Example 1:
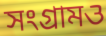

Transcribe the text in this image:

সংগ্রামও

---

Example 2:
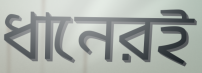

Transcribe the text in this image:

ধানেরই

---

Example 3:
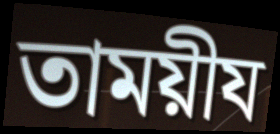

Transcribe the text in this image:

তাময়ীয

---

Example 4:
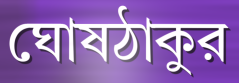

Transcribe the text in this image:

ঘোষঠাকুর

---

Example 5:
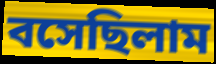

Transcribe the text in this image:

বসেছিলাম